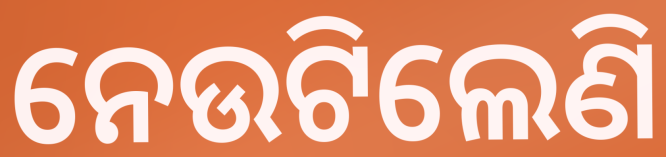
ନେଉଟିଲେଣି